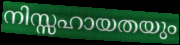
നിസ്സഹായതയും